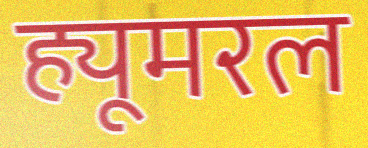
ह्यूमरल